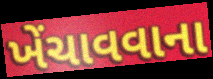
ખેંચાવવાના